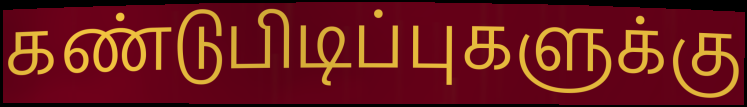
கண்டுபிடிப்புகளுக்கு